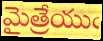
మైత్రేయుఁ